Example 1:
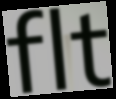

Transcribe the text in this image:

flt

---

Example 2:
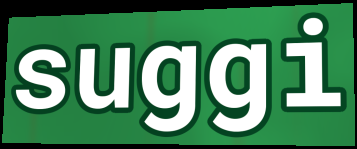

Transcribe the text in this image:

suggi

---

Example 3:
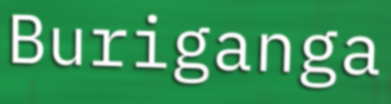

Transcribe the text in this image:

Buriganga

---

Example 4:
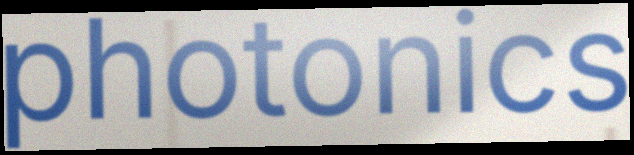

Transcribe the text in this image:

photonics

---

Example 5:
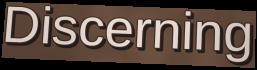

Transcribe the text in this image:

Discerning